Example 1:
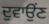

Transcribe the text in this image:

ਦੁਵਾਉਂਣ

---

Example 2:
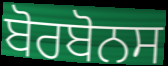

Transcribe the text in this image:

ਬੋਰਬੋਨਸ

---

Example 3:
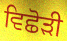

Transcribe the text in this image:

ਵਿਛੋੜੀ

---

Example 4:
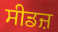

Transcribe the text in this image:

ਸੀਡਜ਼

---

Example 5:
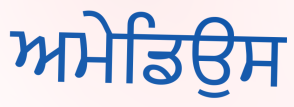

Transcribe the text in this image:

ਅਮੇਡਿਉਸ